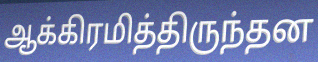
ஆக்கிரமித்திருந்தன